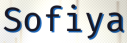
Sofiya